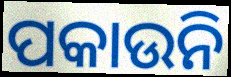
ପକାଉନି